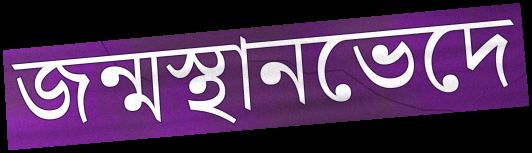
জন্মস্থানভেদে